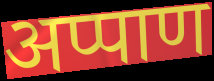
अप्पाण